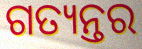
ଗତ୍ୟନ୍ତର